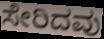
ಸೇರಿದವು